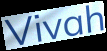
Vivah